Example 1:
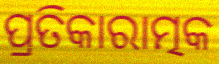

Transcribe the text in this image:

ପ୍ରତିକାରାତ୍ମକ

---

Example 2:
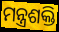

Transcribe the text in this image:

ମନ୍ତ୍ରଶକ୍ତି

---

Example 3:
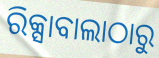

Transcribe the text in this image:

ରିକ୍ସାବାଲାଠାରୁ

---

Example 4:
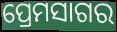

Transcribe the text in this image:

ପ୍ରେମସାଗର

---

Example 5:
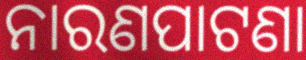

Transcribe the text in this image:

ନାରଣପାଟଣା